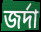
জর্দা